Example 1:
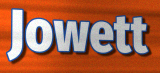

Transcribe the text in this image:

Jowett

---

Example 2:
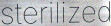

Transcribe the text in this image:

sterilized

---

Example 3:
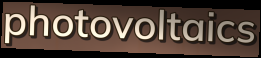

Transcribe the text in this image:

photovoltaics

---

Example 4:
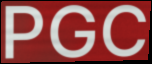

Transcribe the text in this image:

PGC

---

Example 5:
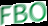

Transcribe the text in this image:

FBO